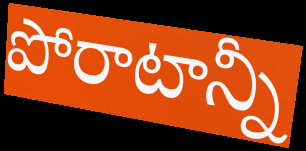
పోరాటాన్నీ